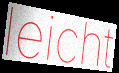
leicht